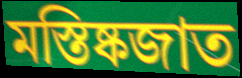
মস্তিষ্কজাত